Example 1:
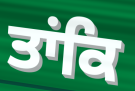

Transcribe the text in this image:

ਤਾਂਕਿ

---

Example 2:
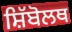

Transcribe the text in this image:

ਸ਼ਿੱਬੋਲਥ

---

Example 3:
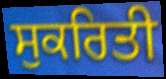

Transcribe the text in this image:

ਸੁਕਰਿਤੀ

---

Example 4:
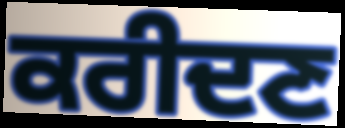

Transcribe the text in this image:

ਕਰੀਦਣ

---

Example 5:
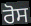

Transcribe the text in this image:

ਰੋਸ